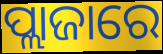
ପ୍ଲାଜାରେ